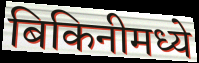
बिकिनीमध्ये